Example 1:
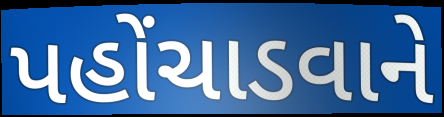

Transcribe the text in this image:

પહોંચાડવાને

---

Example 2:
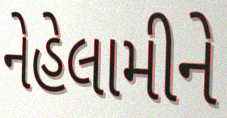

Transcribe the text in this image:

નેહેલામીને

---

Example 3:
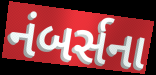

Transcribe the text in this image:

નંબર્સના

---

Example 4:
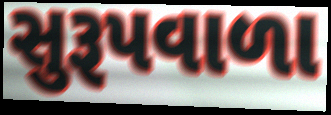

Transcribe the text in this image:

સુરૂપવાળા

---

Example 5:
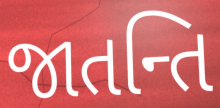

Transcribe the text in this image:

જાતન્તિ